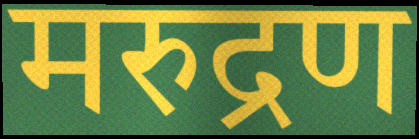
मरुद्रण